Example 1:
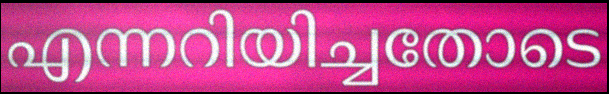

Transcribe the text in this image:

എന്നറിയിച്ചതോടെ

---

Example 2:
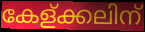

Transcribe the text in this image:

കേള്ക്കലിന്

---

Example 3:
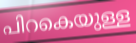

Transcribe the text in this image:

പിറകെയുള്ള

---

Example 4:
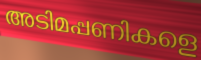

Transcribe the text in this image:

അടിമപ്പണികളെ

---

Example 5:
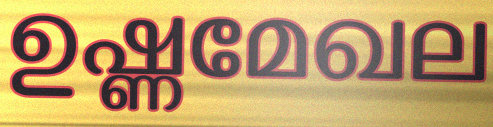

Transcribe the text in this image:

ഉഷ്ണമേഖല